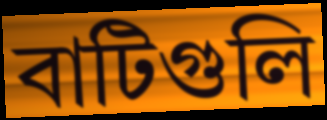
বাটিগুলি